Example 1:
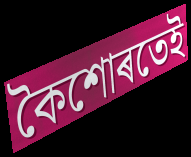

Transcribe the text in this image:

কৈশোৰতেই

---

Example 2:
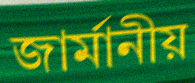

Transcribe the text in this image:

জাৰ্মানীয়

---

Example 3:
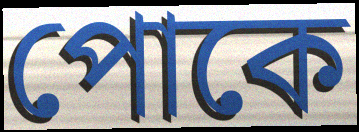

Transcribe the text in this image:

পোকে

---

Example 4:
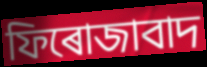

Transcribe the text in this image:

ফিৰোজাবাদ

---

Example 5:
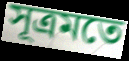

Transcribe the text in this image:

সূত্ৰমতে